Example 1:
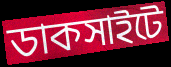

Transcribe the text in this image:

ডাকসাইটে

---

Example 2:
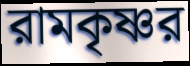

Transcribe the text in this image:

রামকৃষ্ণর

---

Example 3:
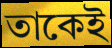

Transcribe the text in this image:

তাকেই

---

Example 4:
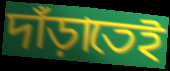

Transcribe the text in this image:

দাঁড়াতেই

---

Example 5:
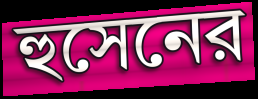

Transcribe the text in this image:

হুসেনের